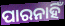
ପାରନାହିଁ